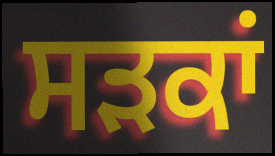
ਸਡ਼ਕਾਂ